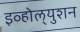
इव्होल्युशन